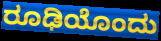
ರೂಢಿಯೊಂದು